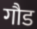
गौड